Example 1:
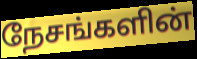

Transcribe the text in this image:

நேசங்களின்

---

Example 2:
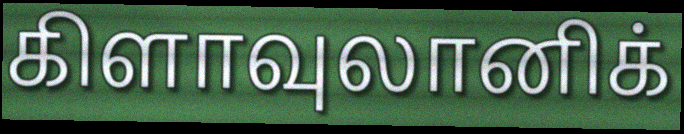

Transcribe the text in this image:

கிளாவுலானிக்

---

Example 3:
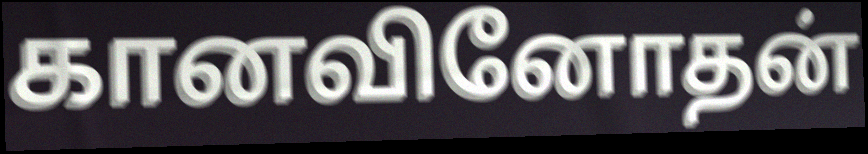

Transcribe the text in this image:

கானவினோதன்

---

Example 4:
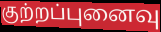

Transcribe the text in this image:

குற்றப்புனைவு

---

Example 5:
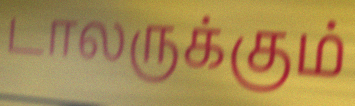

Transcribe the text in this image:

டாலருக்கும்